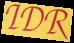
IDR